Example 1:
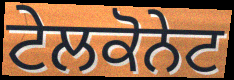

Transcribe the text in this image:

ਟੇਲਕੋਨੇਟ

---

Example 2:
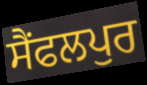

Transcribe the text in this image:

ਸੈਂਫਲਪੁਰ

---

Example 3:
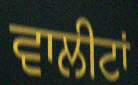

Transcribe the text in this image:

ਵਾਲੀਟਾਂ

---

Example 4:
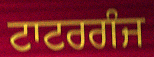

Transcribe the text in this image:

ਟਾਟਰਗੰਜ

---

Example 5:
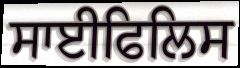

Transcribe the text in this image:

ਸਾਈਫਿਲਿਸ